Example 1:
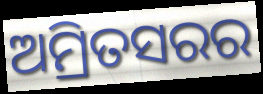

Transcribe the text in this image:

ଅମ୍ରିତସରର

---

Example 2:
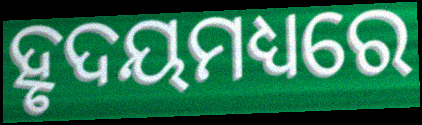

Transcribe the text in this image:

ହୃଦୟମଧ୍ୟରେ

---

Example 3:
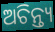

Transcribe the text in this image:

ଅଚିନ୍ତ୍ଯ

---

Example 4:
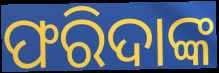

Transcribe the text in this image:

ଫରିଦାଙ୍କ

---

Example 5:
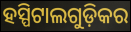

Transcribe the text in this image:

ହସ୍ପିଟାଲଗୁଡ଼ିକର